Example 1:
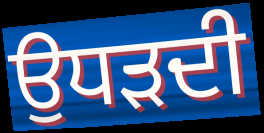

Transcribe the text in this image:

ਉਧੜਦੀ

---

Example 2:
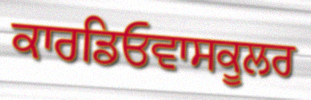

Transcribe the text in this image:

ਕਾਰਡਿਓਵਾਸਕੂਲਰ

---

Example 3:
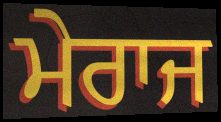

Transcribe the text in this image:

ਮੇਰਾਜ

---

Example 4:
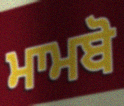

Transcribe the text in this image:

ਮਾਮਬੋ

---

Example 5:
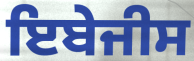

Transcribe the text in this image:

ਇਬੇਜੀਸ